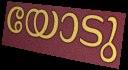
യോടു